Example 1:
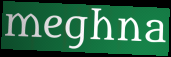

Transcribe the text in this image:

meghna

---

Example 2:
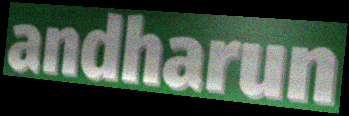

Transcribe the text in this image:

andharun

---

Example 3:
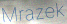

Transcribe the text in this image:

Mrazek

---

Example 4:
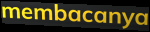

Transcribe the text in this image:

membacanya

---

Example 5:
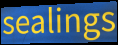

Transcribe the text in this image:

sealings